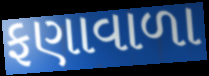
ફણાવાળા